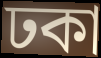
ঢকা